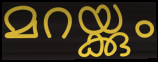
മറയ്ക്കും